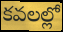
కవలల్లో